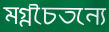
মগ্নচৈতন্যে